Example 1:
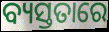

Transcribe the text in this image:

ବ୍ୟସ୍ତତାରେ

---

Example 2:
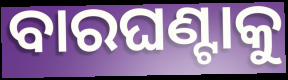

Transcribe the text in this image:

ବାରଘଣ୍ଟାକୁ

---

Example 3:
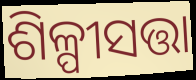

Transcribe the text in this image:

ଶିଳ୍ପୀସତ୍ତା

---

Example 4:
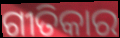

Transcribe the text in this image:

ଗୀତିକାର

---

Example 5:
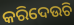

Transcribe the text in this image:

କରିଦେଉଚି